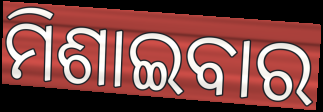
ମିଶାଇବାର